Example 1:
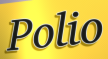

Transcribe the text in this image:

Polio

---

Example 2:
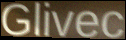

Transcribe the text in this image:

Glivec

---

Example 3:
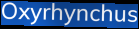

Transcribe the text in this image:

Oxyrhynchus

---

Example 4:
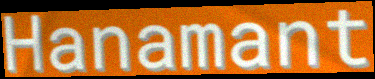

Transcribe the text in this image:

Hanamant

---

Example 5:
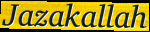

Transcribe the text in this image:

Jazakallah